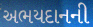
અભયદાનની